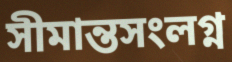
সীমান্তসংলগ্ন